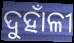
ଦୁହାଁଳୀ